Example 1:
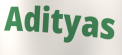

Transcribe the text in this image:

Adityas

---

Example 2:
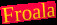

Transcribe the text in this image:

Froala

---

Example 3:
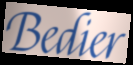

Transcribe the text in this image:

Bedier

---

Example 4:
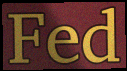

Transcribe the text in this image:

Fed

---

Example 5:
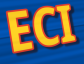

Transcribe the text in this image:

ECI